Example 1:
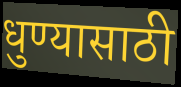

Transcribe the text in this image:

धुण्यासाठी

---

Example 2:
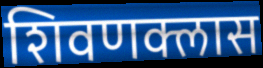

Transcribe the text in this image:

शिवणक्लास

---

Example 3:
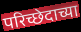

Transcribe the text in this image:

परिच्छेदाच्या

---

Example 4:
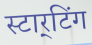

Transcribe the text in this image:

स्टार्टिंग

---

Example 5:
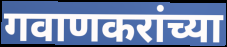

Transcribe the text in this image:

गवाणकरांच्या